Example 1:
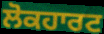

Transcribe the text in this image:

ਲੋਕਹਾਰਟ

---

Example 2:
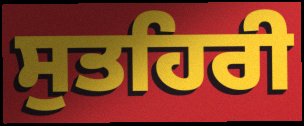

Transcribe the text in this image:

ਸੁਤਹਿਰੀ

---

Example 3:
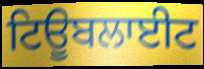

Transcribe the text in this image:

ਟਿਊਬਲਾਈਟ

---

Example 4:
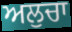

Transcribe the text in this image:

ਅਲੁਚਾ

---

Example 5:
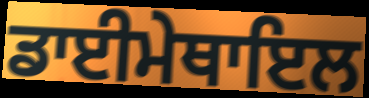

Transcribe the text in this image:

ਡਾਈਮੇਥਾਇਲ